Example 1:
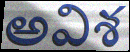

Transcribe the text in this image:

అవిశ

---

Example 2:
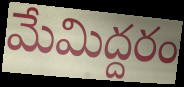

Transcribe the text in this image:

మేమిద్దరం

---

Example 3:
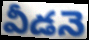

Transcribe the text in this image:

వీడనె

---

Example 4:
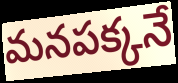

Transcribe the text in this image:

మనపక్కనే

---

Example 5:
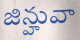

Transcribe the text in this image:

జిన్హువా